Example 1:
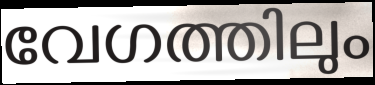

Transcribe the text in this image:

വേഗത്തിലും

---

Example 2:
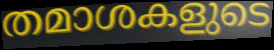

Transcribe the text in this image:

തമാശകളുടെ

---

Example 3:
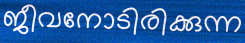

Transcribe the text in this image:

ജീവനോടിരിക്കുന്ന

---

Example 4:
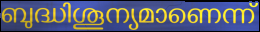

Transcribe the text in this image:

ബുദ്ധിശൂന്യമാണെന്ന്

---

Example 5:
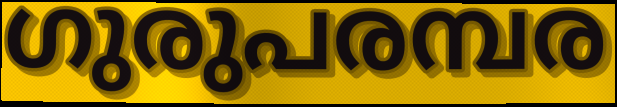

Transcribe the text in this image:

ഗുരുപരമ്പര